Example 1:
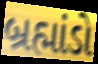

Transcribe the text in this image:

બ્રહ્માંડો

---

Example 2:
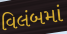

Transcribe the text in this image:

વિલંબમાં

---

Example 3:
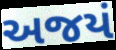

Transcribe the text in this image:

અજયં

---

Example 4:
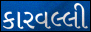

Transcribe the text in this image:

કારવલ્લી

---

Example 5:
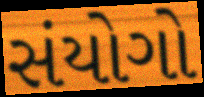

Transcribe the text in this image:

સંયોગો